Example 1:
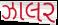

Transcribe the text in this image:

ઝાલર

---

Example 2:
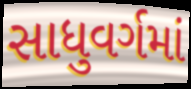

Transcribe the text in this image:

સાધુવર્ગમાં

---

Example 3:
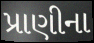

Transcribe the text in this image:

પ્રાણીના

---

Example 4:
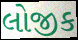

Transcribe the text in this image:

લોજીક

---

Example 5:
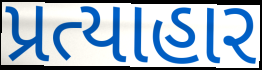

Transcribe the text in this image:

પ્રત્યાહાર